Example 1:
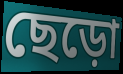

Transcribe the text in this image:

ছেড়ো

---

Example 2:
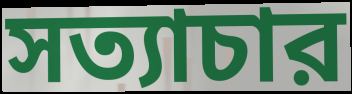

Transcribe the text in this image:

সত্যাচার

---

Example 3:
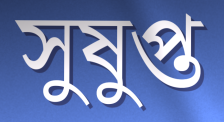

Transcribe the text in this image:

সুষুপ্ত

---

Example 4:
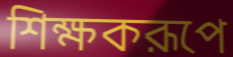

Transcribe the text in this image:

শিক্ষকরূপে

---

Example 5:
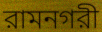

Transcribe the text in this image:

রামনগরী